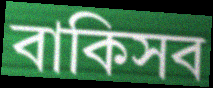
বাকিসব